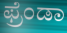
ಫ್ರೆಂಡಾ